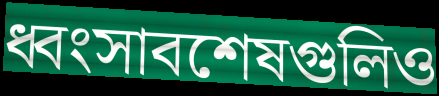
ধ্বংসাবশেষগুলিও